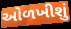
ઓળખીશું